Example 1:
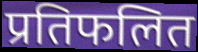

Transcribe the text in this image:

प्रतिफलित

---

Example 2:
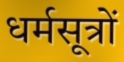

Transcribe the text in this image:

धर्मसूत्रों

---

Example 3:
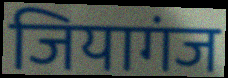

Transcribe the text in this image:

जियागंज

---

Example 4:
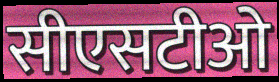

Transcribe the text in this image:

सीएसटीओ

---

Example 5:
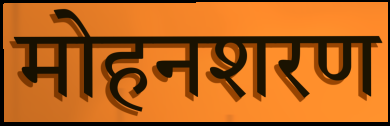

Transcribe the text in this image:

मोहनशरण